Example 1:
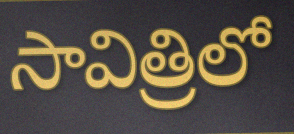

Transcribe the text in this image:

సావిత్రిలో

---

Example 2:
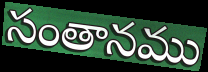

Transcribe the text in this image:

సంతానము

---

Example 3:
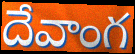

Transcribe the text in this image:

దేవాంగ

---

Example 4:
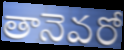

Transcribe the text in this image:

తానెవరో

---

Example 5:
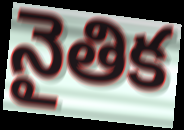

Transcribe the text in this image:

నైతిక